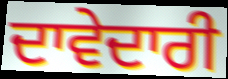
ਦਾਵੇਦਾਰੀ